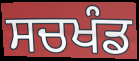
ਸਚਖੰਡ